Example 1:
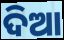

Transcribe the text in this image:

ଦିଆ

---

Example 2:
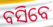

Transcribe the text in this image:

ବସିବେ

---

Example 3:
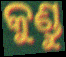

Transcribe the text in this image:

କୁଣ୍ଡୁ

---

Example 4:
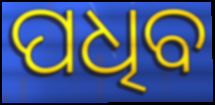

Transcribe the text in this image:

ପଧିବ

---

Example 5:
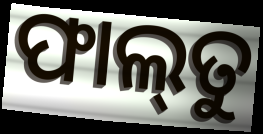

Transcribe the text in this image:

ଫାଲ୍‌ତୁ